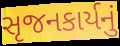
સૃજનકાર્યનું